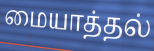
மையாத்தல்